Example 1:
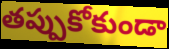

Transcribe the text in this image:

తప్పుకోకుండా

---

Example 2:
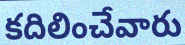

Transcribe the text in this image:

కదిలించేవారు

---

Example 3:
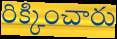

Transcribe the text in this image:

రిక్కించారు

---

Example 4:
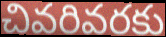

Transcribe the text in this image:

చివరివరకు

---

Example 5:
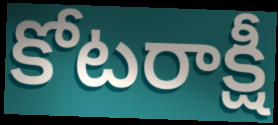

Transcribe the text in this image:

కోటరాక్షీ